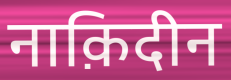
नाक़िदीन